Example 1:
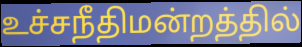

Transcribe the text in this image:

உச்சநீதிமன்றத்தில்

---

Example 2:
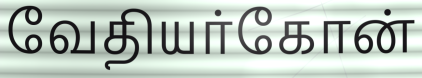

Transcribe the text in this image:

வேதியர்கோன்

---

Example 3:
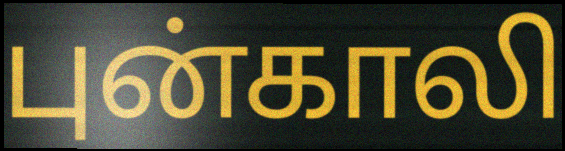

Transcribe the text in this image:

புன்காலி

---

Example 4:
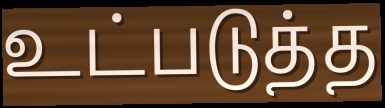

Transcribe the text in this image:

உட்படுத்த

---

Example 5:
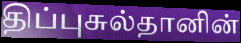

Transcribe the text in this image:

திப்புசுல்தானின்